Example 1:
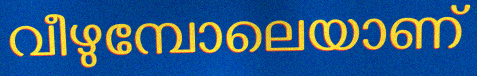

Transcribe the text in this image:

വീഴുമ്പോലെയാണ്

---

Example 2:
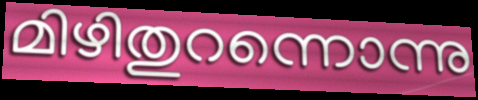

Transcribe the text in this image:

മിഴിതുറന്നൊന്നു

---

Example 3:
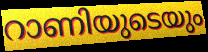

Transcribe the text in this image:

റാണിയുടെയും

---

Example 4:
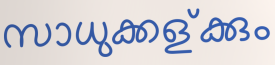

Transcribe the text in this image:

സാധുക്കള്ക്കും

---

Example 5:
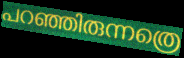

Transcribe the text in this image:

പറഞ്ഞിരുന്നത്രെ